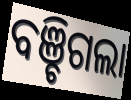
ବଞ୍ଚିଗଲା